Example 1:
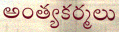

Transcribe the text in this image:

అంత్యకర్మలు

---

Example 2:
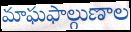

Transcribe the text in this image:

మాఘఫాల్గుణాల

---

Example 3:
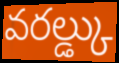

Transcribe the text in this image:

వరల్డ్కు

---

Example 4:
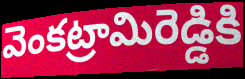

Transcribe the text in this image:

వెంకట్రామిరెడ్డికి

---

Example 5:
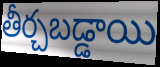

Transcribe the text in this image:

తీర్చబడ్డాయి